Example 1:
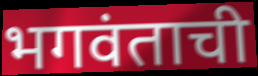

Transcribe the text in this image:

भगवंताची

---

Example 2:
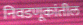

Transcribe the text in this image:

निवडणूकांतील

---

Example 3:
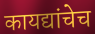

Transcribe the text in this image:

कायद्यांचेच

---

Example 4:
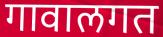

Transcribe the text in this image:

गावालगत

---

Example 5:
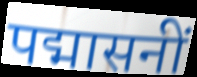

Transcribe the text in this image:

पद्मासनीं